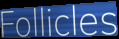
Follicles